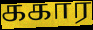
ககார